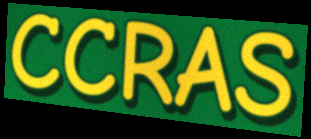
CCRAS